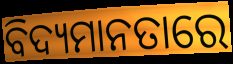
ବିଦ୍ୟମାନତାରେ